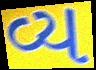
વ્ય